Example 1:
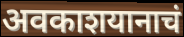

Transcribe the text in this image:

अवकाशयानाचं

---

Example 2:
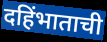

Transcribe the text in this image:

दहिंभाताची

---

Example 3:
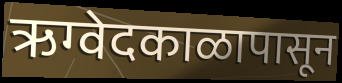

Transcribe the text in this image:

ऋग्वेदकाळापासून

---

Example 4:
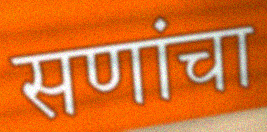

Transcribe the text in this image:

सणांचा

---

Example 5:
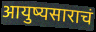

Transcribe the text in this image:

आयुष्यसाराचं